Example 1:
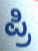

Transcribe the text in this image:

ಪ್ರಿ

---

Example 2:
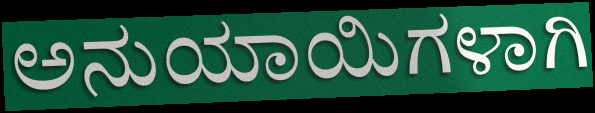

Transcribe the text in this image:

ಅನುಯಾಯಿಗಳಾಗಿ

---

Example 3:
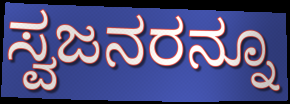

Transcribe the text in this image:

ಸ್ವಜನರನ್ನೂ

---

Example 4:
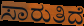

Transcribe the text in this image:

ಸಾರುತಿದೆ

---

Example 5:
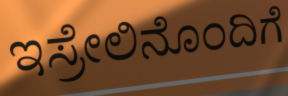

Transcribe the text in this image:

ಇಸ್ರೇಲಿನೊಂದಿಗೆ